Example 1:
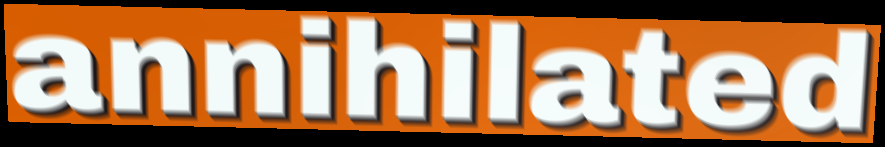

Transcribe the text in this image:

annihilated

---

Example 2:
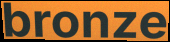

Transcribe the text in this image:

bronze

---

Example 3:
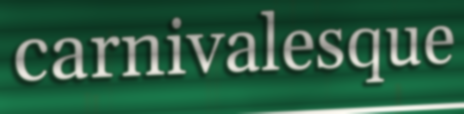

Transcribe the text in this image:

carnivalesque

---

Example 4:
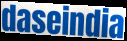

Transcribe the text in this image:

daseindia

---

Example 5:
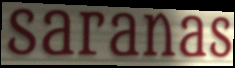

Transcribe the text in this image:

saranas